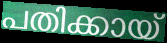
പതിക്കായ്